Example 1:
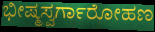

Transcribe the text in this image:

ಭೀಷ್ಮಸ್ವರ್ಗಾರೋಹಣ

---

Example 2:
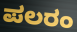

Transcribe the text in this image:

ಪಲರಂ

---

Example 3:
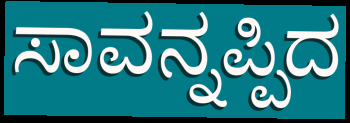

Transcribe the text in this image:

ಸಾವನ್ನಪ್ಪಿದ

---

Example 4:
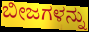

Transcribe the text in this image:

ಬೀಜಗಳನ್ನು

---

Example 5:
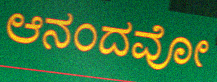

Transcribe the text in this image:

ಆನಂದವೋ